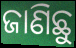
ଜାଣିଛୁ